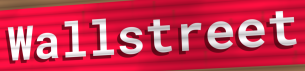
Wallstreet